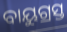
ବାୟୁଗ୍ରସ୍ତ